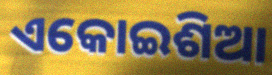
ଏକୋଇଶିଆ